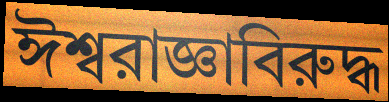
ঈশ্বরাজ্ঞাবিরুদ্ধ